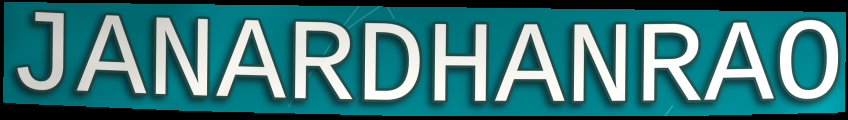
JANARDHANRAO